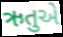
ઋતુએ